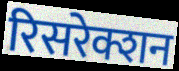
रिसरेक्शन